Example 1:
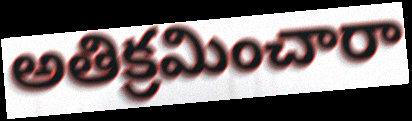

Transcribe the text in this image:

అతిక్రమించారా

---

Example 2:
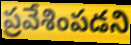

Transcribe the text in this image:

ప్రవేశింపడని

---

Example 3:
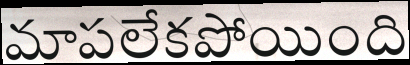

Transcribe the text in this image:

మాపలేకపోయింది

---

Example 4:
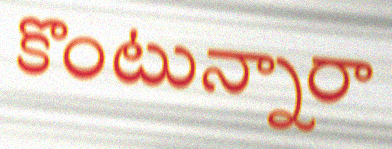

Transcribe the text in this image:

కొంటున్నారా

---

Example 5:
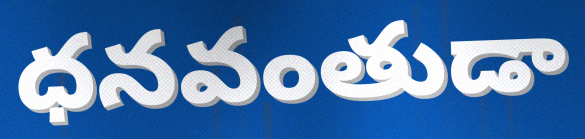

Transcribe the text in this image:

ధనవంతుడా